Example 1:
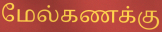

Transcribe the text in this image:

மேல்கணக்கு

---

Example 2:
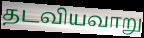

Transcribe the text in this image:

தடவியவாறு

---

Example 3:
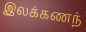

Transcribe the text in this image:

இலக்கணந்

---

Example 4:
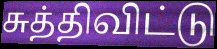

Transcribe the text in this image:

சுத்திவிட்டு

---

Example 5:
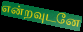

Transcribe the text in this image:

என்றவுடனே